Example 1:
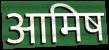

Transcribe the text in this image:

आमिष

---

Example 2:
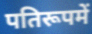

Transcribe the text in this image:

पतिरूपमें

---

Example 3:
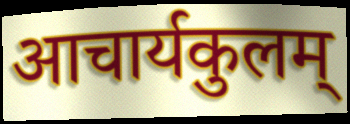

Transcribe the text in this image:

आचार्यकुलम्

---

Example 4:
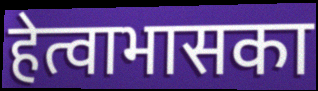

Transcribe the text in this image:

हेत्वाभासका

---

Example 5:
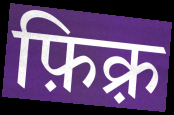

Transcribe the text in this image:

फ़िक़्र